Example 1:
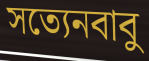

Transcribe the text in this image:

সত্যেনবাবু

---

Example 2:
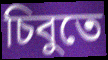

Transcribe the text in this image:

চিবুতে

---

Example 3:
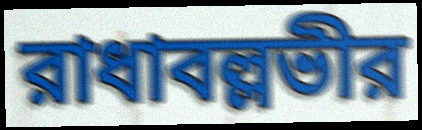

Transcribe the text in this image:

রাধাবল্লভীর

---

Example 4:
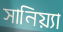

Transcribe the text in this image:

সানিয়্যা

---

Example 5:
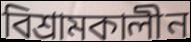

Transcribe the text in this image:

বিশ্রামকালীন